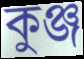
কুঞ্জ